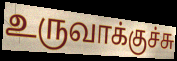
உருவாக்குச்சு